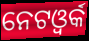
ନେଟଓ୍ବର୍କ